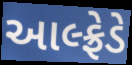
આલ્ફ્રેડે